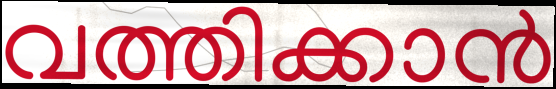
വത്തിക്കാൻ